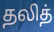
தலித்